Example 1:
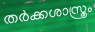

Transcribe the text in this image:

തർക്കശാസ്ത്രം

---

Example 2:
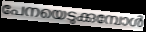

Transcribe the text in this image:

പേനയെടുക്കുമ്പോൾ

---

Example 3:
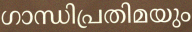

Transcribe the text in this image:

ഗാന്ധിപ്രതിമയും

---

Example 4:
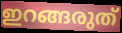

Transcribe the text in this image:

ഇറങ്ങരുത്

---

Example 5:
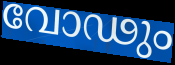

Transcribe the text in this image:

വോഢും